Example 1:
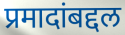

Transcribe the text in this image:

प्रमादांबद्दल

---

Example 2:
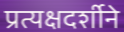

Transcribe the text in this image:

प्रत्यक्षदर्शीने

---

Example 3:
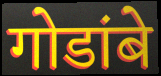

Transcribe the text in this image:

गोडांबे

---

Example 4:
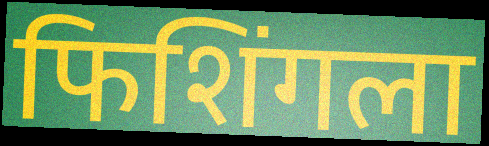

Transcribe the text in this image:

फिशिंगला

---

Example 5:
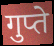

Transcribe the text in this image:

गुप्ते